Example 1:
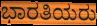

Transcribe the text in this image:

ಭಾರತಿಯರು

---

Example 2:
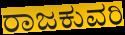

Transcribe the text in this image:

ರಾಜಕುವರಿ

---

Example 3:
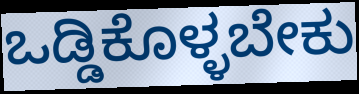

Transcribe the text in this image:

ಒಡ್ಡಿಕೊಳ್ಳಬೇಕು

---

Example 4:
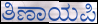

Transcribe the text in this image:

ತಿಣಾಯಪಿ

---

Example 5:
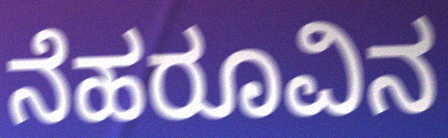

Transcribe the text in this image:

ನೆಹರೂವಿನ